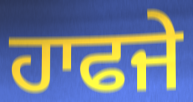
ਹਾਫਜੇ